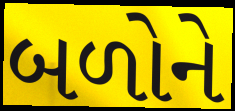
બળોને